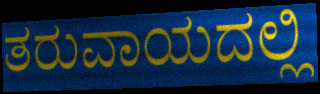
ತರುವಾಯದಲ್ಲಿ